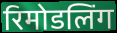
रिमोडलिंग